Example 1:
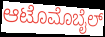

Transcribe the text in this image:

ಆಟೊಮೊಬೈಲ್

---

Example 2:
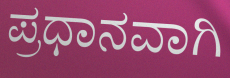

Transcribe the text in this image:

ಪ್ರಧಾನವಾಗಿ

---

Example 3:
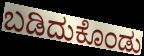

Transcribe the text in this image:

ಬಡಿದುಕೊಂಡು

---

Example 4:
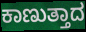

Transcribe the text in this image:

ಕಾಣುತ್ತಾದ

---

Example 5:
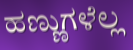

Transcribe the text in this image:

ಹಣ್ಣುಗಳೆಲ್ಲ